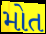
મોત